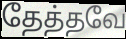
தேத்தவே